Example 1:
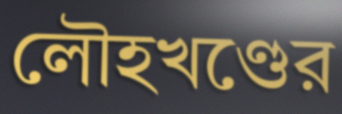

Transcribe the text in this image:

লৌহখণ্ডের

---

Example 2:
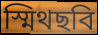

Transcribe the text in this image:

স্মিথছবি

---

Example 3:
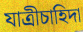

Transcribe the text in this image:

যাত্রীচাহিদা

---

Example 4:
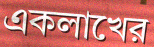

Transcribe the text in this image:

একলাখের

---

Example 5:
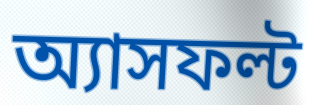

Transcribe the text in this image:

অ্যাসফল্ট